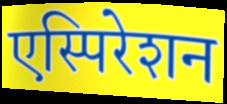
एस्पिरेशन